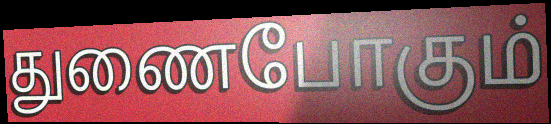
துணைபோகும்